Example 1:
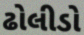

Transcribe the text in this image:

ઢોલીડો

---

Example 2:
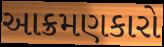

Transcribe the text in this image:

આક્રમણકારો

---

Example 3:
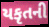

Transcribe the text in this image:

યકૃતની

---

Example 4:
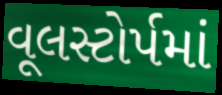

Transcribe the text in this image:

વૂલસ્ટોર્પમાં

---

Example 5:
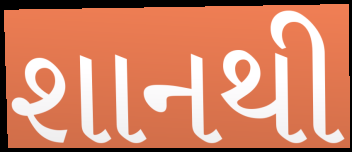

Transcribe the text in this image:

શાનથી